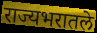
राज्यभरातले